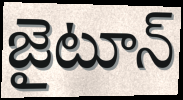
జైటూన్